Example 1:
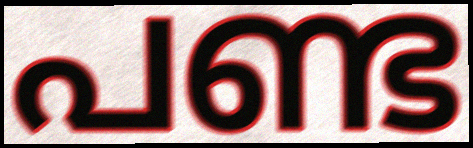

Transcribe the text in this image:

പണ്ട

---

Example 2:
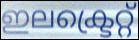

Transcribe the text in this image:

ഇലക്ട്രെറ്റ്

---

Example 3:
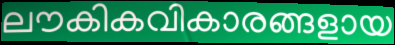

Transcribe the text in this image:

ലൗകികവികാരങ്ങളായ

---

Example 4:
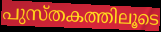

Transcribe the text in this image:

പുസ്തകത്തിലൂടെ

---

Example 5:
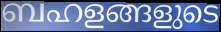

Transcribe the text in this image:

ബഹളങ്ങളുടെ